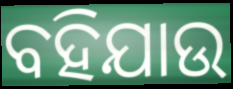
ବହିଯାଉ